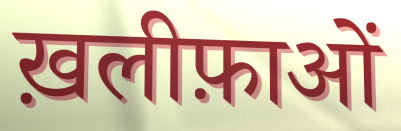
ख़लीफ़ाओं